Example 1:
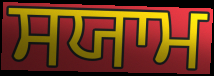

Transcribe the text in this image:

ਸਯਾਮ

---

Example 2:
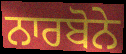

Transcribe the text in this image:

ਨਾਰਬੋਨੇ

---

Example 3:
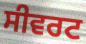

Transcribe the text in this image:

ਸੀਵਰਟ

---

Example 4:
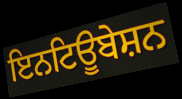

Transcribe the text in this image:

ਇਨਟਿਊਬੇਸ਼ਨ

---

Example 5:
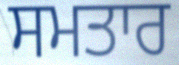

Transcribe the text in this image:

ਸਮਤਾਰ